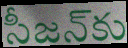
సీజన్‌కు